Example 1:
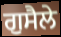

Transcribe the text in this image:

ਗੁਸੈਲੇ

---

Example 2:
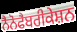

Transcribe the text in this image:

ਨੈਨੋਫੈਬਰੀਕੇਸ਼ਨ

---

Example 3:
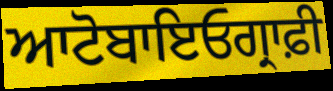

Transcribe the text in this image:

ਆਟੋਬਾਇਓਗ੍ਰਾਫ਼ੀ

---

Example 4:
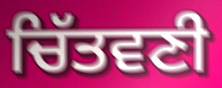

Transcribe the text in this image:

ਚਿੱਤਵਣੀ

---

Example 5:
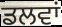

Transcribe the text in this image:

ਡਲਵਾਂ